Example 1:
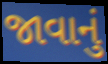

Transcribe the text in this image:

જાવાનું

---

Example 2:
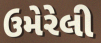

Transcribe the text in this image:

ઉમેરેલી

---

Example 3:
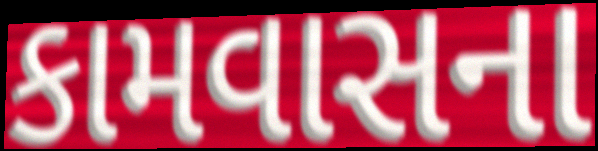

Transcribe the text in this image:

કામવાસના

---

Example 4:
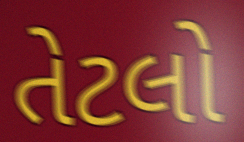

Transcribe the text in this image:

તેટલો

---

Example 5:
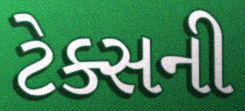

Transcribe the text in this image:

ટેક્સની